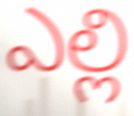
ఎల్లి